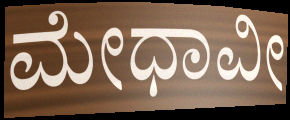
ಮೇಧಾವೀ